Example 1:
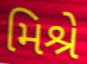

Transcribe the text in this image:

મિશ્રે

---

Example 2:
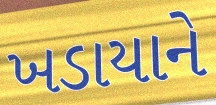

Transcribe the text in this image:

ખડાયાને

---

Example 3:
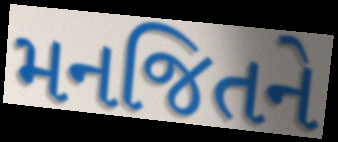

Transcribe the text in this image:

મનજિતને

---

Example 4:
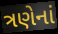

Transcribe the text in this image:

ત્રણેનાં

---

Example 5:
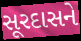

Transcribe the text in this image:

સૂરદાસને